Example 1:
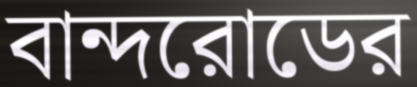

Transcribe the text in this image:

বান্দরোডের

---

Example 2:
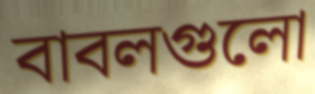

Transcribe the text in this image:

বাবলগুলো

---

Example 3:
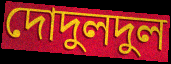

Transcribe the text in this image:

দোদুলদুল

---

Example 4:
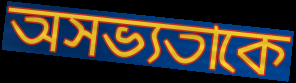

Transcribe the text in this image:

অসভ্যতাকে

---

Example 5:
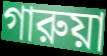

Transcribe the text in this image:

গারুয়া